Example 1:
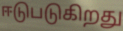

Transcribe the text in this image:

ஈடுபடுகிறது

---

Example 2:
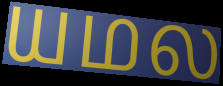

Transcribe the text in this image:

யமல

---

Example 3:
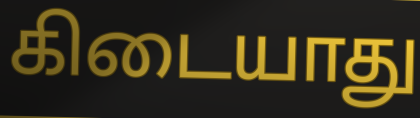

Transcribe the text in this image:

கிடையாது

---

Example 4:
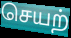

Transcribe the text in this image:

செயற்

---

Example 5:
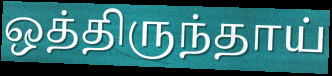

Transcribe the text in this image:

ஒத்திருந்தாய்